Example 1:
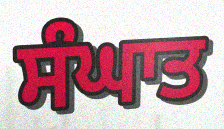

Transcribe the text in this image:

ਸੰਘਾਤ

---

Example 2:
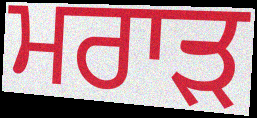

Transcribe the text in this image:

ਮਰਾੜ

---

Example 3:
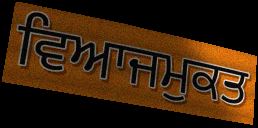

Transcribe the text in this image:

ਵਿਆਜਮੁਕਤ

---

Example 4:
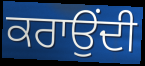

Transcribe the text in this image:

ਕਰਾਉਂਦੀ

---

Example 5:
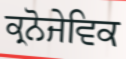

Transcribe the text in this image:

ਕ੍ਰਨੋਜੇਵਿਕ